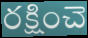
రక్షించె